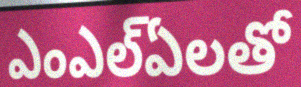
ఎంఎల్ఏలతో